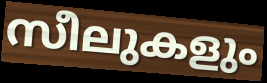
സീലുകളും